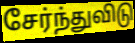
சேர்ந்துவிடு